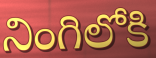
నింగిలోకి